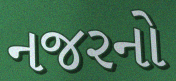
નજરનો